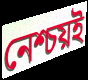
নেশ্চয়ই